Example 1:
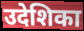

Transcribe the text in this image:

उदेशिका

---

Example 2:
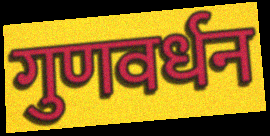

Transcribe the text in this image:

गुणवर्धन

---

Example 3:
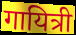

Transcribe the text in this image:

गायित्री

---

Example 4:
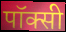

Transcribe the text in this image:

पॉक्सी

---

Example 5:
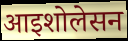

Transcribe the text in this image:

आइशोलेसन